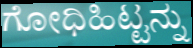
ಗೋಧಿಹಿಟ್ಟನ್ನು